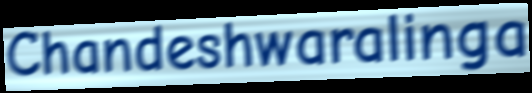
Chandeshwaralinga